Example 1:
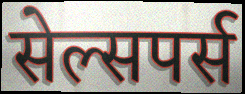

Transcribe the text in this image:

सेल्सपर्स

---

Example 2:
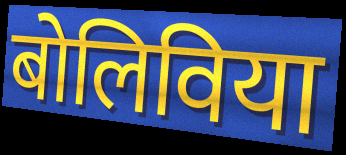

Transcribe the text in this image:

बोलिविया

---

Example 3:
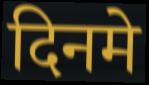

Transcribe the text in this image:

दिनमे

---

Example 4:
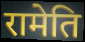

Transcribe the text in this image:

रामेति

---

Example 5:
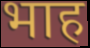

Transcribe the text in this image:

भाह